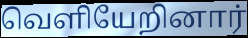
வெளியேறினார்